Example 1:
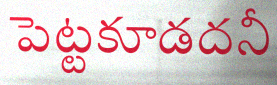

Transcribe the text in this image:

పెట్టకూడదనీ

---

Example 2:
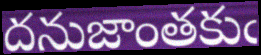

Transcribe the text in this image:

దనుజాంతకుఁ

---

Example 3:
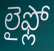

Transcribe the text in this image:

లైఫ్లో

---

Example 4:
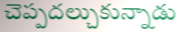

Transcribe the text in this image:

చెప్పదల్చుకున్నాడు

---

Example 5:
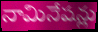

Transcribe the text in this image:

నామినేషన్లు